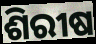
ଶିରୀଷ